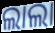
ଲାଲା